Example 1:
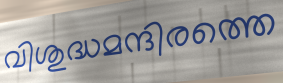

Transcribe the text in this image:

വിശുദ്ധമന്ദിരത്തെ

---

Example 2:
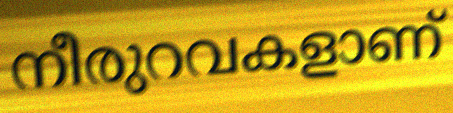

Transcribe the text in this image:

നീരുറവകളാണ്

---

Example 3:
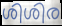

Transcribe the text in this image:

ശിശിര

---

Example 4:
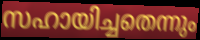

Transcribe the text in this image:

സഹായിച്ചതെന്നും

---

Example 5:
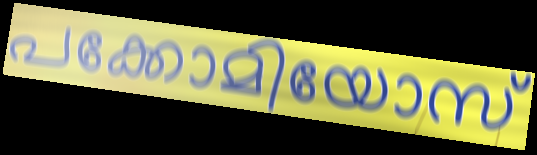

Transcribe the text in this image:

പക്കോമിയോസ്